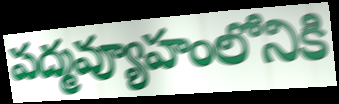
పద్మవ్యూహంలోనికి